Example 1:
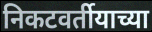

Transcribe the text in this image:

निकटवर्तीयाच्या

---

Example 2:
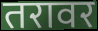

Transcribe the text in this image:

तरावर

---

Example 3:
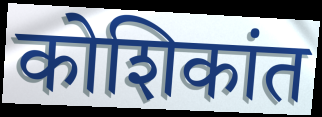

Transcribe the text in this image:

कोशिकांत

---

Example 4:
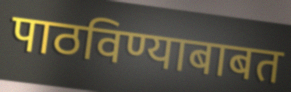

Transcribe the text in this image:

पाठविण्याबाबत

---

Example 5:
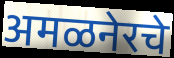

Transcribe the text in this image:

अमळनेरचे